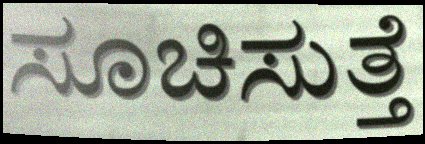
ಸೂಚಿಸುತ್ತೆ